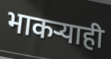
भाकऱ्याही